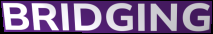
BRIDGING